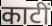
काटीं